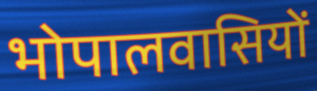
भोपालवासियों